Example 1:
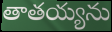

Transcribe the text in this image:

తాతయ్యను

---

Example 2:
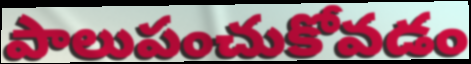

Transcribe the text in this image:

పాలుపంచుకోవడం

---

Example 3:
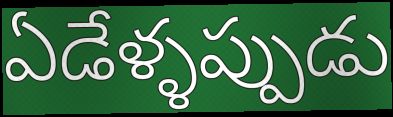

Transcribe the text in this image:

ఏడేళ్ళప్పుడు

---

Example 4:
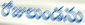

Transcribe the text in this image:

రోజులుండను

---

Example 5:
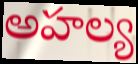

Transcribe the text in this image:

అహల్య